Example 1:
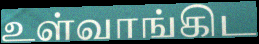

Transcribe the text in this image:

உள்வாங்கிட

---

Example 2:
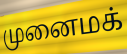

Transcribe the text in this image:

முனைமக்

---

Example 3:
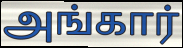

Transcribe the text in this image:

அங்கார்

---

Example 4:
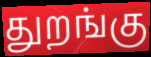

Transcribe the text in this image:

துறங்கு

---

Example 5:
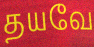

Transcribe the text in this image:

தயவே